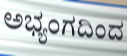
ಅಭ್ಯಂಗದಿಂದ